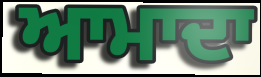
ਆਮਾਦਾ